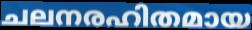
ചലനരഹിതമായ